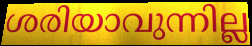
ശരിയാവുന്നില്ല